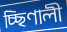
চ্ছিণালী